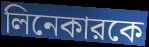
লিনেকারকে